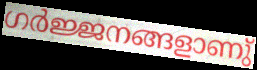
ഗർജ്ജനങ്ങളാണു്